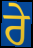
ਰੇ